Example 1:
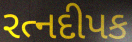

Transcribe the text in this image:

રત્નદીપક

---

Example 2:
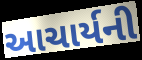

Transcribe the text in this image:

આચાર્યની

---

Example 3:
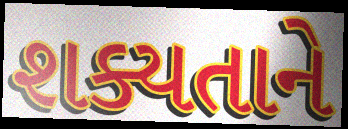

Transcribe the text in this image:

શક્યતાને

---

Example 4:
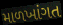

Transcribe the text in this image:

માળખાંગત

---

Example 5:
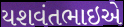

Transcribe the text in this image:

યશવંતભાઇએ